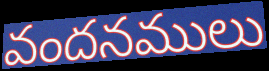
వందనములు